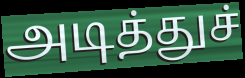
அடித்துச்